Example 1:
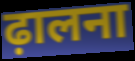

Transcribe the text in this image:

ढ़ालना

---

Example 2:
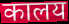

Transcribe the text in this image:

कालय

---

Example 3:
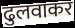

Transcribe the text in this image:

ढुलवाकर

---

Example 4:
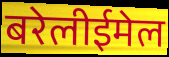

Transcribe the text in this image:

बरेलीईमेल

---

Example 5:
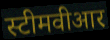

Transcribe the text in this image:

स्टीमवीआर